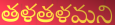
తళతళమని